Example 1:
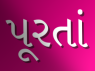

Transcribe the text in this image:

પૂરતાં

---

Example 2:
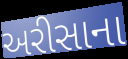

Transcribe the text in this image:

અરીસાના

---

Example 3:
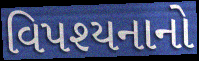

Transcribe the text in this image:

વિપશ્યનાનો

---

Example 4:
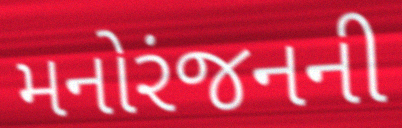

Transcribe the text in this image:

મનોરંજનની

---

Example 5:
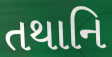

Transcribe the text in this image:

તથાનિ